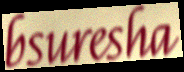
bsuresha